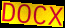
DOCX